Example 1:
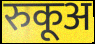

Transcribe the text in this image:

रुकूअ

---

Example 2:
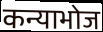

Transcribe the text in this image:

कन्याभोज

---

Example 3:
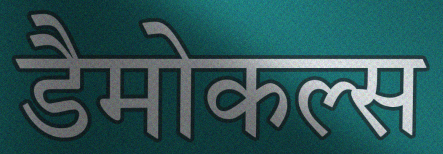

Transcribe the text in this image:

डैमोकल्स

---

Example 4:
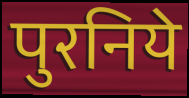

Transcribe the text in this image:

पुरनिये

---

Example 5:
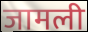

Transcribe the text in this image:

जामली